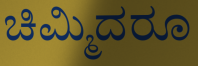
ಚಿಮ್ಮಿದರೂ